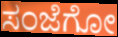
ಸಂಜೆಗೋ